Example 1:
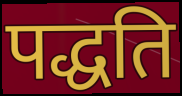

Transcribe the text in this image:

पद्धति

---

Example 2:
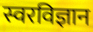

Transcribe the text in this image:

स्वरविज्ञान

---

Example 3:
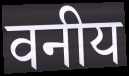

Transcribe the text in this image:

वनीय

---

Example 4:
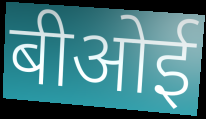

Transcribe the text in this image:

बीओई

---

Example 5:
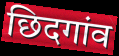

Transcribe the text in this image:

छिदगांव